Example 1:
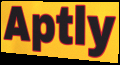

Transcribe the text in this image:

Aptly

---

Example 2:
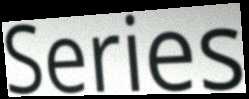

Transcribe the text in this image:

Series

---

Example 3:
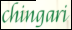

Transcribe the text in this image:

chingari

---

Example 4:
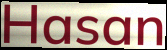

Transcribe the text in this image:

Hasan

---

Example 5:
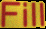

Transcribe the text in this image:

Fill